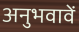
अनुभवावें